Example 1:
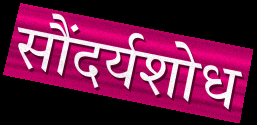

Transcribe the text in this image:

सौंदर्यशोध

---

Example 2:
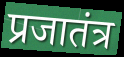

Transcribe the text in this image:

प्रजातंत्र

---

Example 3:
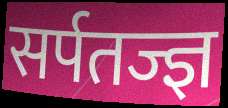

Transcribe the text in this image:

सर्पतज्ज्ञ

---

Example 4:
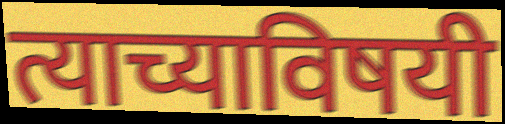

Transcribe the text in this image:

त्याच्याविषयी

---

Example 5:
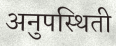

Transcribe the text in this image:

अनुपस्थिती